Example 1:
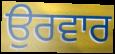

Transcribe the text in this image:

ਉਰਵਾਰ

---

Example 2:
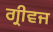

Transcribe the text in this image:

ਗ੍ਰੀਵਜ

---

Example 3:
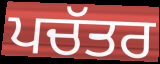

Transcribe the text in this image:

ਪਚੱਤਰ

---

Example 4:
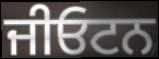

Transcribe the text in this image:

ਜੀਓਟਨ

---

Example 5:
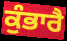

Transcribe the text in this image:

ਕੁੰਭਾਰੈ